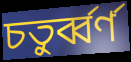
চতুর্ব্বর্ণ